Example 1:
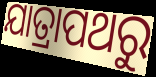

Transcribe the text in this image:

ଯାତ୍ରାପଥରୁ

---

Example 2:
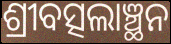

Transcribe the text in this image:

ଶ୍ରୀବତ୍ସଲାଞ୍ଛନ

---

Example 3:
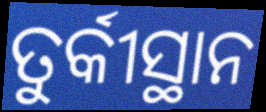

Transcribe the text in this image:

ତୁର୍କୀସ୍ଥାନ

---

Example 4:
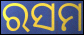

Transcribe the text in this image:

ରସମ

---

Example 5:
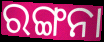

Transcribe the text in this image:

ରଙ୍ଗନା